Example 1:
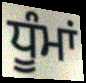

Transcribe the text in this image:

ਧੂੰਮਾਂ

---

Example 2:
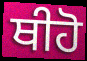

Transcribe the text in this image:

ਥੀਹੋ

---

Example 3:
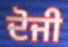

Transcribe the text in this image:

ਦੋਜੀ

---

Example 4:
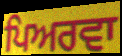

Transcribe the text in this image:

ਪਿਅਰਵਾ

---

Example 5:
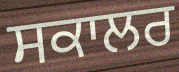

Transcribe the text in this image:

ਸਕਾਲਰ